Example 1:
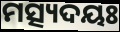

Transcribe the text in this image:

ମତ୍ସ୍ୟଦୟଃ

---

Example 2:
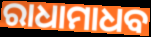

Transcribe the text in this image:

ରାଧାମାଧବ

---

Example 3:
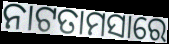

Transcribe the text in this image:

ନାଟତାମସାରେ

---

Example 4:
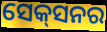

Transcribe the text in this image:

ସେକ୍‍ସନର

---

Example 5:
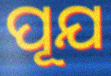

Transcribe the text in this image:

ପୂଯ